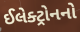
ઈલેક્ટ્રોનનો